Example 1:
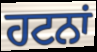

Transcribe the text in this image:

ਹਟਨਾਂ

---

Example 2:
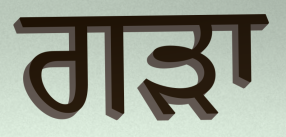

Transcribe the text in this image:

ਗੜਾ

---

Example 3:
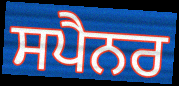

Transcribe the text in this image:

ਸਪੈਨਰ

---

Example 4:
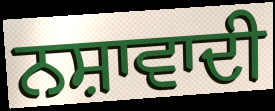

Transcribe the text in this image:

ਨਸ਼ਾਵਾਦੀ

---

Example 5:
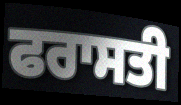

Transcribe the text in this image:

ਫਰਾਸਤੀ